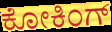
ಕೋಕಿಂಗ್